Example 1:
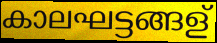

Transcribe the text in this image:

കാലഘട്ടങ്ങള്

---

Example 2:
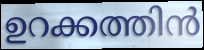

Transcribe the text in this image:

ഉറക്കത്തിൻ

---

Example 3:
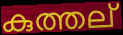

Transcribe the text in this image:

കുത്തല്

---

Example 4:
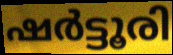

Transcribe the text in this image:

ഷർട്ടൂരി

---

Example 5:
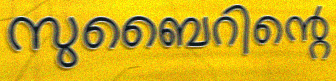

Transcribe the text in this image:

സുബൈറിന്റെ